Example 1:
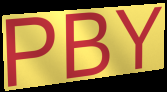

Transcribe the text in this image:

PBY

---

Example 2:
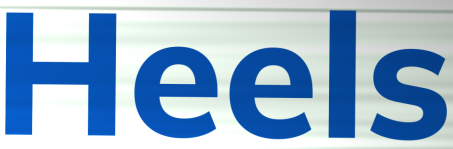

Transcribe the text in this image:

Heels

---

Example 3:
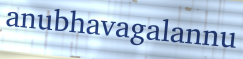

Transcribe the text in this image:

anubhavagalannu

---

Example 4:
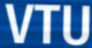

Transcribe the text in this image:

VTU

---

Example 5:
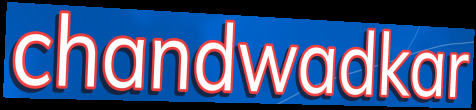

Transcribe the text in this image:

chandwadkar